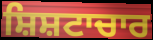
ਸ਼ਿਸ਼ਟਾਚਾਰ